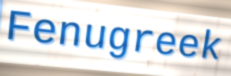
Fenugreek